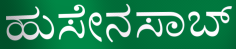
ಹುಸೇನಸಾಬ್